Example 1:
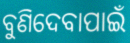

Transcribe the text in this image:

ବୁଣିଦେବାପାଇଁ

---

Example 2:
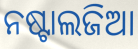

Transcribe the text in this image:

ନଷ୍ଟାଲଜିଆ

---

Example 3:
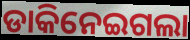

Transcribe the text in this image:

ଡାକିନେଇଗଲା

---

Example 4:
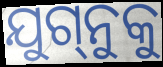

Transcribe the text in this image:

ଯୁଗ୍‌ନୁକୁ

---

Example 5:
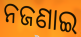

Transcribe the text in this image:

ନଜଣାଇ